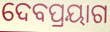
ଦେବପ୍ରୟାଗ